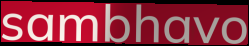
sambhavo